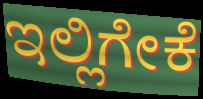
ಇಲ್ಲಿಗೇಕೆ